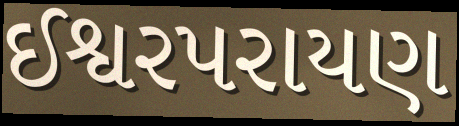
ઈશ્વરપરાયણ